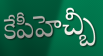
కేపీహెచ్బీ